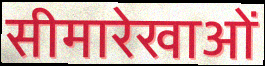
सीमारेखाओं